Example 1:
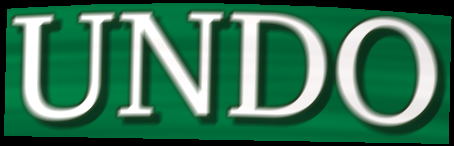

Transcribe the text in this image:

UNDO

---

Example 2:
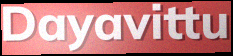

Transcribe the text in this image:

Dayavittu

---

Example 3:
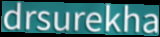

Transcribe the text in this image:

drsurekha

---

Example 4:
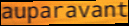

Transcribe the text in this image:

auparavant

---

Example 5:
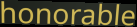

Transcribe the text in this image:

honorable